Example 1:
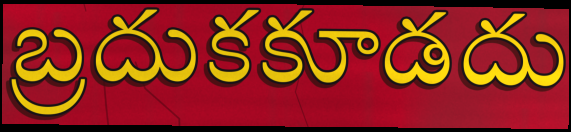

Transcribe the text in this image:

బ్రదుకకూడదు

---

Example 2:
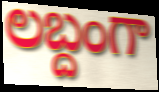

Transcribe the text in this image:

లబ్దంగా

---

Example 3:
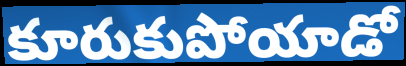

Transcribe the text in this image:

కూరుకుపోయాడో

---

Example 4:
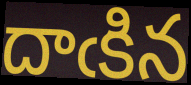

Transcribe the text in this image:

దాఁకిన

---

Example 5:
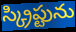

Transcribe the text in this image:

స్క్రిప్టును